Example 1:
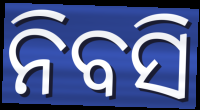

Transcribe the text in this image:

ନିବସି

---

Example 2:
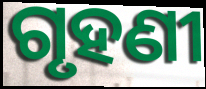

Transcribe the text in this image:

ଗୃହଣୀ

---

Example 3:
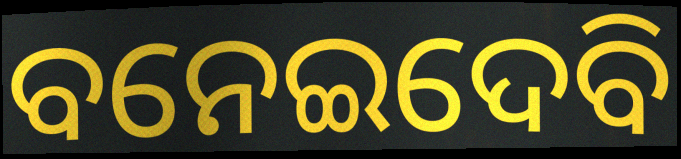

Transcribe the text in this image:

ବନେଇଦେବି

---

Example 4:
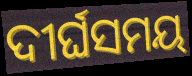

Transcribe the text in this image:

ଦୀର୍ଘସମୟ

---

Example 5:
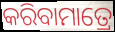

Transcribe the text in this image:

କରିବାମାତ୍ରେ